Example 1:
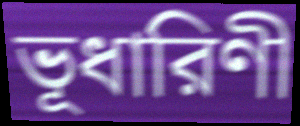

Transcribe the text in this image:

ভূধারিণী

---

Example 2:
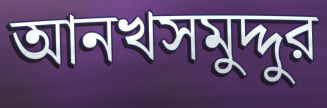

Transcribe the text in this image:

আনখসমুদ্দুর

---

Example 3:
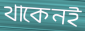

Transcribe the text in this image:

থাকেনই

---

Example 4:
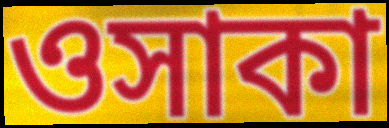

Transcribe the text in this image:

ওসাকা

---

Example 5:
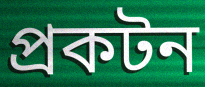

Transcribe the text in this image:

প্রকটন